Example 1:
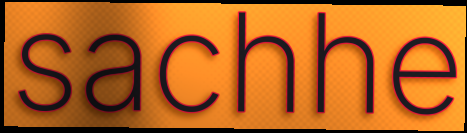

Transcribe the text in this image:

sachhe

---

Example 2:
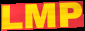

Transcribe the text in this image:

LMP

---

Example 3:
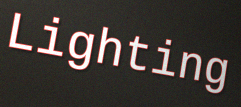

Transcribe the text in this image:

Lighting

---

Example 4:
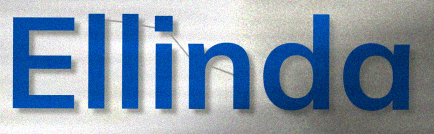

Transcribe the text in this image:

Ellinda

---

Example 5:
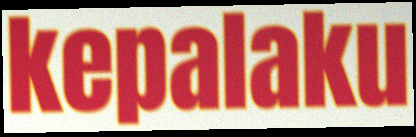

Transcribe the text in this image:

kepalaku